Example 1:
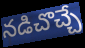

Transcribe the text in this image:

నడిచొచ్చే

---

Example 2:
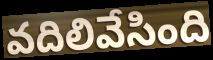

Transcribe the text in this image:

వదిలివేసింది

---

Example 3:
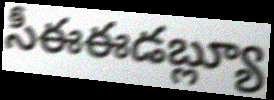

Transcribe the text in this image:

సీఈఈడబ్ల్యూ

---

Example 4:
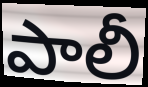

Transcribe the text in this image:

పాలీ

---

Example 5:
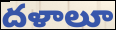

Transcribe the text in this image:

దళాలూ